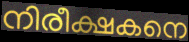
നിരീക്ഷകനെ